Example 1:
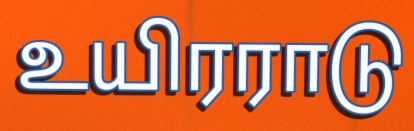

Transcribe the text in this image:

உயிரராடு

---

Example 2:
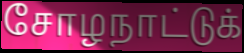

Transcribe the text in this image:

சோழநாட்டுக்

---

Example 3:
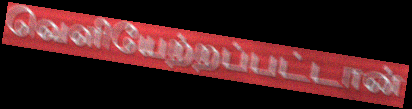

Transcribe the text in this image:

வெளியேற்றப்பட்டான்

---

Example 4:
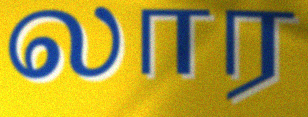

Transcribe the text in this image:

லார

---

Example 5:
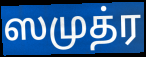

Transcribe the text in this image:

ஸமுத்ர